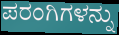
ಪರಂಗಿಗಳನ್ನು